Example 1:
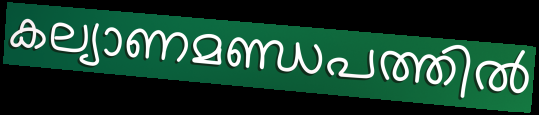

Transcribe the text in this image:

കല്യാണമണ്ഡപത്തിൽ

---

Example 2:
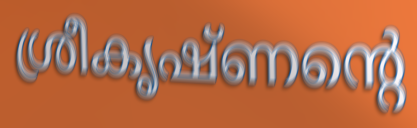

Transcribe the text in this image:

ശ്രീകൃഷ്ണന്റെ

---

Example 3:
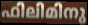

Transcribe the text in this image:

ഫിലിമിനു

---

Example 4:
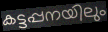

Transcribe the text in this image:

കട്ടപ്പനയിലും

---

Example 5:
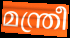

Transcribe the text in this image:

മന്ത്രീ